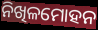
ନିଖିଳମୋହନ